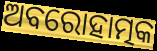
ଅବରୋହାତ୍ମକ